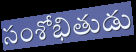
సంశోభితుడు